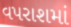
વપરાશમાં